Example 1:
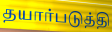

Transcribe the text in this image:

தயார்படுத்தி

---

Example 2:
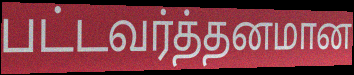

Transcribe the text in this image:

பட்டவர்த்தனமான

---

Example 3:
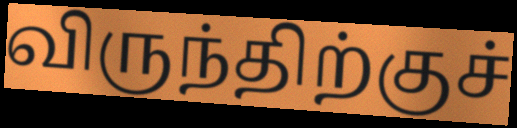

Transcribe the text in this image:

விருந்திற்குச்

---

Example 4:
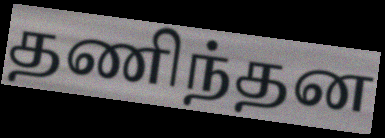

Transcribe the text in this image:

தணிந்தன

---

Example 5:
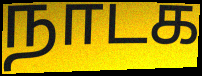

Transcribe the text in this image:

நாடக